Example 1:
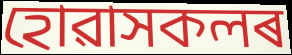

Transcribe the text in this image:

হোৱাসকলৰ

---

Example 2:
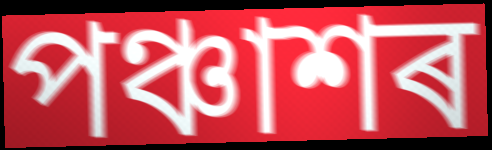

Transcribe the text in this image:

পঞ্চাশৰ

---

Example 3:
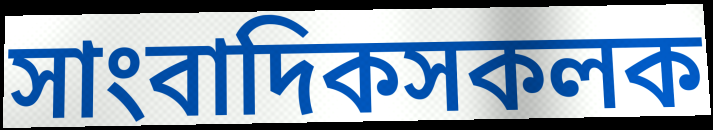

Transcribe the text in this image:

সাংবাদিকসকলক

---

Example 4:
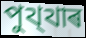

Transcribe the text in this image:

পুথ্থাৰ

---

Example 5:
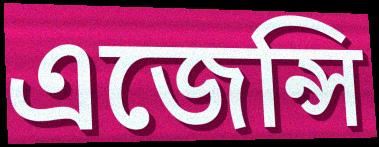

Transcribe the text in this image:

এজেন্সি